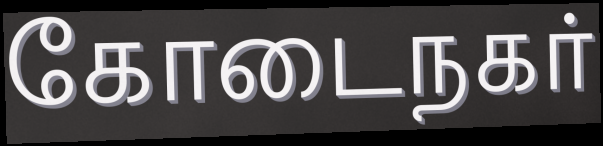
கோடைநகர்